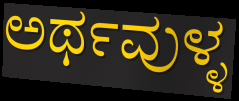
ಅರ್ಥವುಳ್ಳ